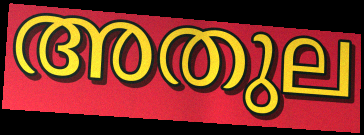
അതുല